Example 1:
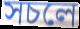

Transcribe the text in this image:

সচলে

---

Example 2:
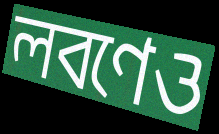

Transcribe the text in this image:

লবণেও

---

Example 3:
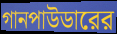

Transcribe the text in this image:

গানপাউডারের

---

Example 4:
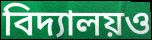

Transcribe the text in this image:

বিদ্যালয়ও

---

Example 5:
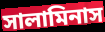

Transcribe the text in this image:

সালামিনাস